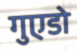
गुएडो